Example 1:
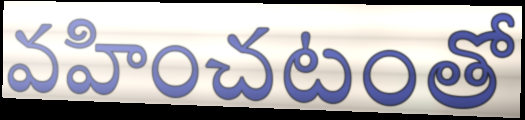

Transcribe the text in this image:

వహించటంతో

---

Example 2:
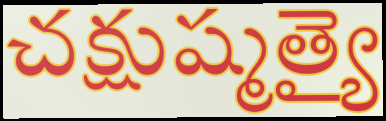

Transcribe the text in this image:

చక్షుష్మత్యై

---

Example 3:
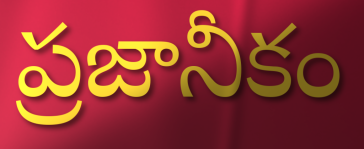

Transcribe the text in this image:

ప్రజానీకం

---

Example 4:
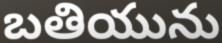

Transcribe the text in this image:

బతియును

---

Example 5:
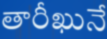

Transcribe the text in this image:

తారీఖునే